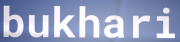
bukhari